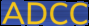
ADCC